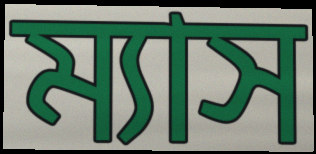
ম্যাস